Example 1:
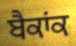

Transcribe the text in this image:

ਬੈਕਾਂਕ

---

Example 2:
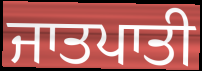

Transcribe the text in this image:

ਜਾਤਪਾਤੀ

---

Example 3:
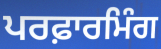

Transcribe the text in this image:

ਪਰਫ਼ਾਰਮਿੰਗ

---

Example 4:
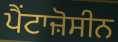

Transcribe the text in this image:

ਪੈਂਟਾਜ਼ੋਸੀਨ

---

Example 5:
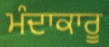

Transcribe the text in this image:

ਮੰਦਾਕਾਰੂ